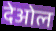
देओल